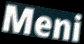
Meni